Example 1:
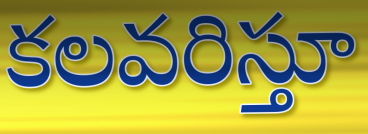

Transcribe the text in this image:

కలవరిస్తూ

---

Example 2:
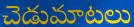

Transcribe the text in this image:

చెడుమాటలు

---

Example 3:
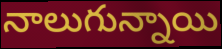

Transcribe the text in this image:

నాలుగున్నాయి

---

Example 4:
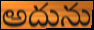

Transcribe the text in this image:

అదును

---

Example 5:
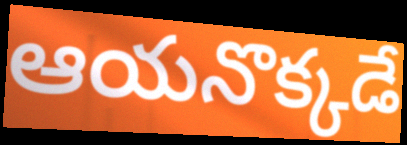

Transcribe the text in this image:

ఆయనొక్కడే